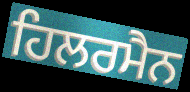
ਹਿਲਰਮੈਨ